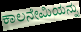
ಕಾಲನೇಮಿಯನ್ನು